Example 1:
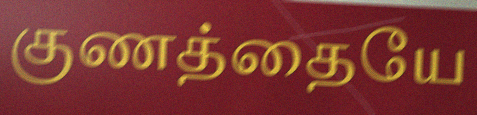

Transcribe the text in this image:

குணத்தையே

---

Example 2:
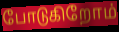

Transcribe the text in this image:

போடுகிறோம்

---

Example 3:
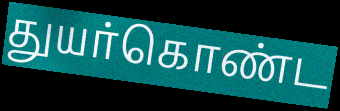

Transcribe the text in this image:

துயர்கொண்ட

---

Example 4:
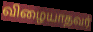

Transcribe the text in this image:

விழையாதவர்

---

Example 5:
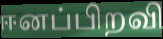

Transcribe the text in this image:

ஈனப்பிறவி